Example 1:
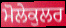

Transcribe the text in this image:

ਮੋਲੇਕੁਲਰ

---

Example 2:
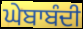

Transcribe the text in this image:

ਘੇਬਾਬੰਦੀ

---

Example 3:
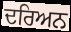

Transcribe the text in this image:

ਦਰਿਅਨ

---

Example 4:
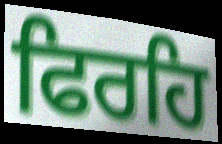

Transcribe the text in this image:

ਫਿਰਹਿ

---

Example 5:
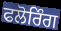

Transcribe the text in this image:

ਫਲੋਰਿੰਗ